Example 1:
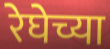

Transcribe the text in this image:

रेघेच्या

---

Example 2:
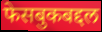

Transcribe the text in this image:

फेसबुकबद्दल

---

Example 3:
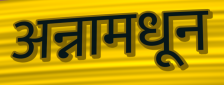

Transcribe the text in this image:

अन्नामधून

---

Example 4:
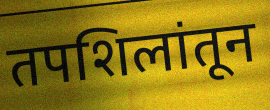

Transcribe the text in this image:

तपशिलांतून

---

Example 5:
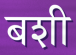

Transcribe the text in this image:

बशी